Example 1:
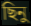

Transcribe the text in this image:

ছিনু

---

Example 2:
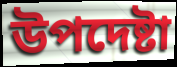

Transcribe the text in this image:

উপদেষ্টা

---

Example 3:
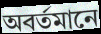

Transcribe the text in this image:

অবর্তমানে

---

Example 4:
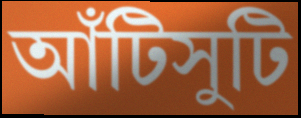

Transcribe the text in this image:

আঁটিসুটি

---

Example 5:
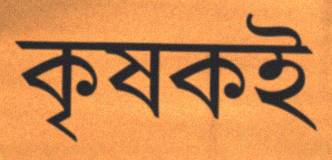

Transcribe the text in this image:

কৃষকই